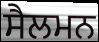
ਸੈਲਮਨ